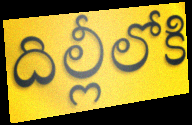
దిల్లీలోకి